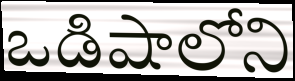
ఒడిషాలోని